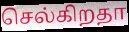
செல்கிறதா